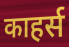
काहर्स